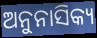
ଅନୁନାସିକ୍ୟ